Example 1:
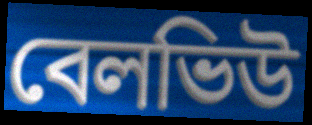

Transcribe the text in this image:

বেলভিউ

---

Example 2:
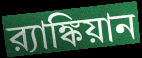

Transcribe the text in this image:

র‍্যাঙ্কিয়ান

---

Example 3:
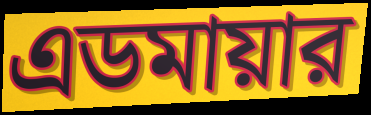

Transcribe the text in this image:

এডমায়ার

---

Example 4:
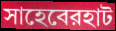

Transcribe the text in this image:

সাহেবেরহাট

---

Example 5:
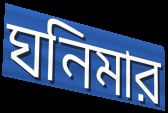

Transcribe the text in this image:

ঘনিমার